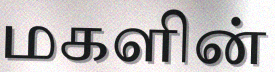
மகளின்